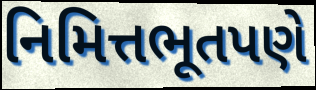
નિમિત્તભૂતપણે